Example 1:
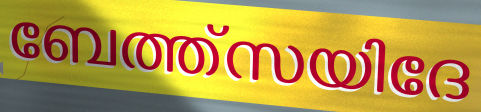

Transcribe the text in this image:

ബേത്ത്സയിദേ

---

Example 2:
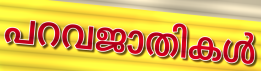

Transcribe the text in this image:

പറവജാതികൾ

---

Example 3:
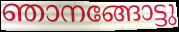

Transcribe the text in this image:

ഞാനങ്ങോട്ടു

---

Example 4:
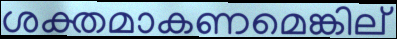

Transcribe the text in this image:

ശക്തമാകണമെങ്കില്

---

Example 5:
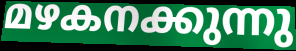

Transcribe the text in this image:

മഴകനക്കുന്നു